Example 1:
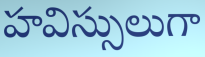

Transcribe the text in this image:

హవిస్సులుగా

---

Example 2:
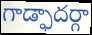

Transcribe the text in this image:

గాడ్ఫాదర్గా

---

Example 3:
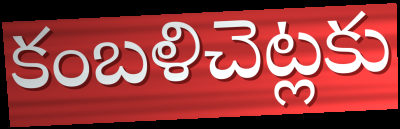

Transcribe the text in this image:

కంబళిచెట్లకు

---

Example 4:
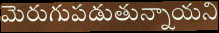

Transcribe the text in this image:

మెరుగుపడుతున్నాయని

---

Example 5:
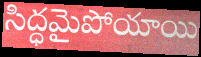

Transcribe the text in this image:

సిద్ధమైపోయాయి